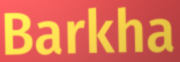
Barkha